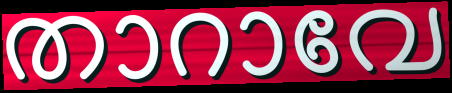
താറാവേ